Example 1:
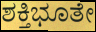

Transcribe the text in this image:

ಶಕ್ತಿಭೂತೇ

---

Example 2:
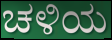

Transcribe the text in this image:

ಚಳಿಯ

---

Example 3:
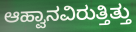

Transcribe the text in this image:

ಆಹ್ವಾನವಿರುತ್ತಿತ್ತು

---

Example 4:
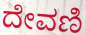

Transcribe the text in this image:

ದೇವಣಿ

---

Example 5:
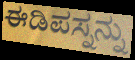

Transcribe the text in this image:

ಈಡಿಪಸ್ನನ್ನು